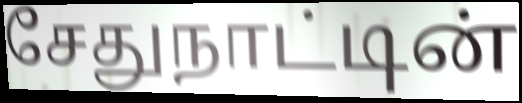
சேதுநாட்டின்